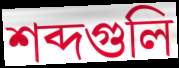
শব্দগুলি